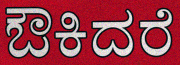
ಔಕಿದರೆ